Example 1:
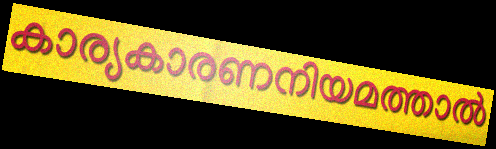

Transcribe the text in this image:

കാര്യകാരണനിയമത്താൽ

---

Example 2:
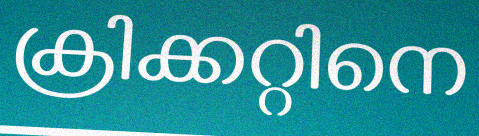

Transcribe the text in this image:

ക്രിക്കറ്റിനെ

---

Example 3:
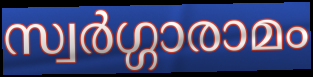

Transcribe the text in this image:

സ്വർഗ്ഗാരാമം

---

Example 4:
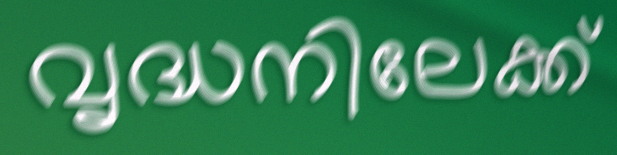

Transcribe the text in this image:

വൃദ്ധനിലേക്ക്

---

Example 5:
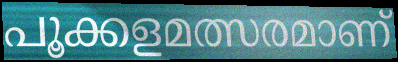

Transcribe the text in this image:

പൂക്കളമത്സരമാണ്